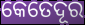
କେତେଦୂର